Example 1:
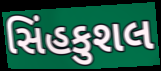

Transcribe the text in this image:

સિંહકુશલ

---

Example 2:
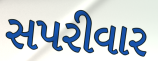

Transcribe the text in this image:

સપરીવાર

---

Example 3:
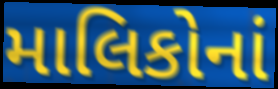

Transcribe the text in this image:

માલિકોનાં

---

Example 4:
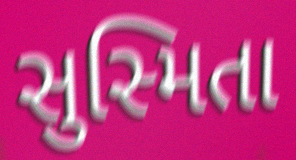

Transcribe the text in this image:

સુસ્મિતા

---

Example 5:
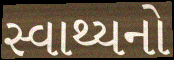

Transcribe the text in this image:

સ્વાથ્યનો